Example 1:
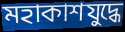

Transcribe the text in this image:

মহাকাশযুদ্ধে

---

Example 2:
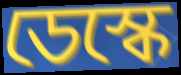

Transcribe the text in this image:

ডেস্কে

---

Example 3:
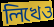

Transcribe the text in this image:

লিখেও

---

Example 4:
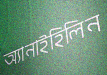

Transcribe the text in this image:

অ্যানাইহিলিন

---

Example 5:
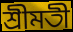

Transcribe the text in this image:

শ্রীমতী